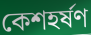
কেশহর্ষণ